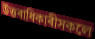
উত্তৰাধিকাৰীসকলে